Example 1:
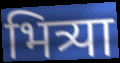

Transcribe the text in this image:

भित्र्या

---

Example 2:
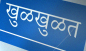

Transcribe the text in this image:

खुळखुळत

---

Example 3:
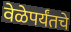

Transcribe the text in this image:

वेळेपर्यंतचे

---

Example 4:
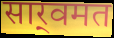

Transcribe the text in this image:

सार्वमत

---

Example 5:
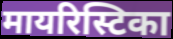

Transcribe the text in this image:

मायरिस्टिका